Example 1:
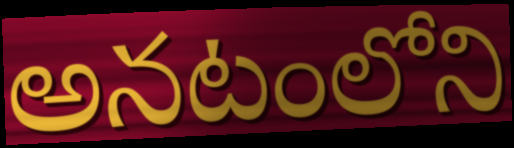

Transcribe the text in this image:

అనటంలోని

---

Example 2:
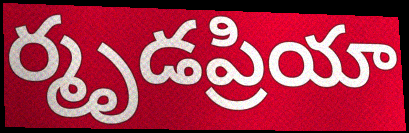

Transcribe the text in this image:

ర్మృడప్రియా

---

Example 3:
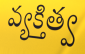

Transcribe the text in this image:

వ్యక్తిత్వ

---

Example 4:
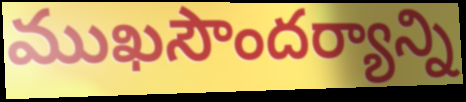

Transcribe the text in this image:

ముఖసౌందర్యాన్ని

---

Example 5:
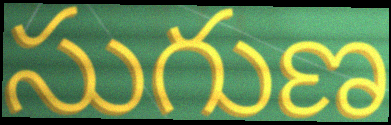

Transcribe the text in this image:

సుగుణ